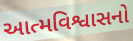
આત્મવિશ્વાસનો